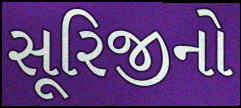
સૂરિજીનો